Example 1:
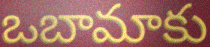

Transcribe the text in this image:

ఒబామాకు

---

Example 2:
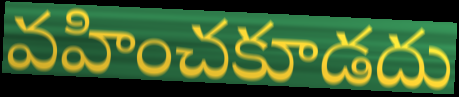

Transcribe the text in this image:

వహించకూడదు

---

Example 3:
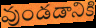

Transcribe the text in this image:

వుండడానికి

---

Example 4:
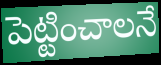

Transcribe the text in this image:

పెట్టించాలనే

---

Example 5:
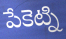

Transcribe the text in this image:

పేకెట్ని